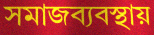
সমাজব্যবস্থায়